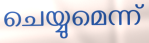
ചെയ്യുമെന്ന്